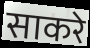
साकरे